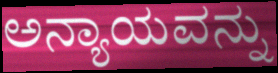
ಅನ್ಯಾಯವನ್ನು